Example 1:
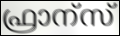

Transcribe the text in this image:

ഫ്രാന്സ്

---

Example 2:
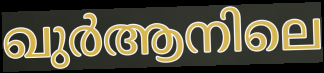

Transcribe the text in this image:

ഖുർആനിലെ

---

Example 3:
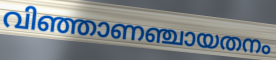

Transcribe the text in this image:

വിഞ്ഞാണഞ്ചായതനം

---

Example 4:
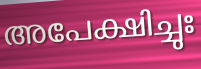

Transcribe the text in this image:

അപേക്ഷിച്ചുഃ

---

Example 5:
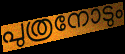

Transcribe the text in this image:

പുത്രനോടും